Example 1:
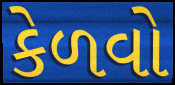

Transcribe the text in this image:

કેળવો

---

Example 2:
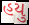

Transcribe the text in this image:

હયુ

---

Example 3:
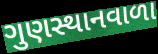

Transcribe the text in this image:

ગુણસ્થાનવાળા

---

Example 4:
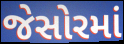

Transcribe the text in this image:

જેસોરમાં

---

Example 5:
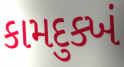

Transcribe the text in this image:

કામદુક્ખં